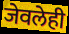
जेवलेही